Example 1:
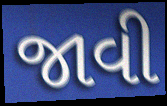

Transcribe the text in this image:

જાવી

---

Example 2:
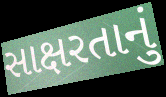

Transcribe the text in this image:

સાક્ષરતાનું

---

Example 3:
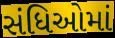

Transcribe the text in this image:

સંધિઓમાં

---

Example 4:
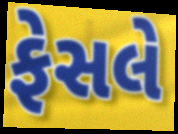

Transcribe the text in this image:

ફેસલે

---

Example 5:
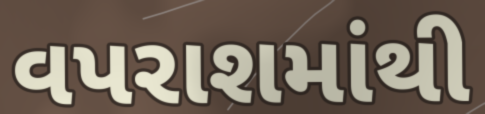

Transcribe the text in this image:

વપરાશમાંથી